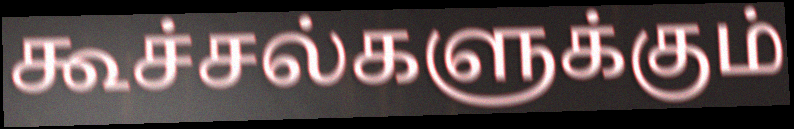
கூச்சல்களுக்கும்